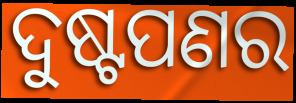
ଦୁଷ୍ଟପଣର